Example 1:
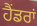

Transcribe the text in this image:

ਹੈਂਡਰਾਂ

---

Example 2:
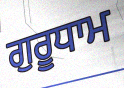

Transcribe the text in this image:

ਗੁਰੂਧਾਮ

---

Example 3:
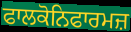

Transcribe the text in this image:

ਫਾਲਕੋਨਿਫਾਰਮਜ਼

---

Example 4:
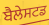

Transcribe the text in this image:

ਬੈਲੇਸਟਡ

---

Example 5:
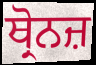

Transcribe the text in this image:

ਥ੍ਰੋਨਜ਼